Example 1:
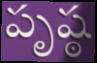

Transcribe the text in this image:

పృష్ఠ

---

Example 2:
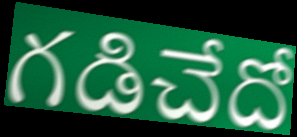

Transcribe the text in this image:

గడిచేదో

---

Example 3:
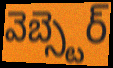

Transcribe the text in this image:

వెబ్స్టెర్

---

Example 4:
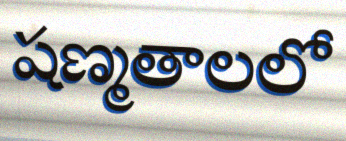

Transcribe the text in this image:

షణ్మతాలలో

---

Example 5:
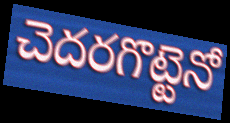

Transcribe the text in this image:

చెదరగొట్టెనో